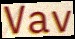
Vav